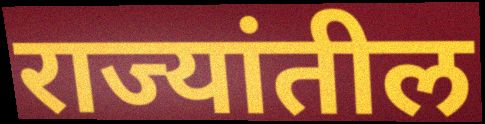
राज्यांतील